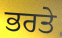
ਭਰਤੇ